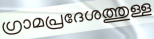
ഗ്രാമപ്രദേശത്തുള്ള